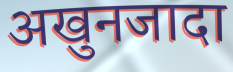
अखुनजादा